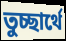
তুচ্ছার্থে